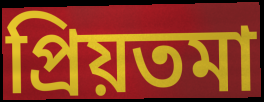
প্রিয়তমা